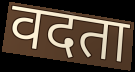
वदता